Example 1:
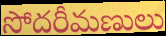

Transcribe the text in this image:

సోదరీమణులు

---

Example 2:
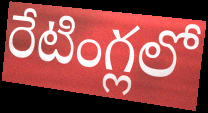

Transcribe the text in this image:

రేటింగ్లలో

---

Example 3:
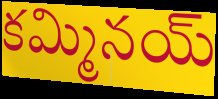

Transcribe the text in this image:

కమ్మినయ్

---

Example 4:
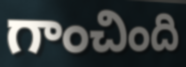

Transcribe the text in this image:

గాంచింది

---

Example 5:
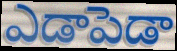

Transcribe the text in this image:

ఎడాపెడా